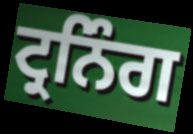
ਟ੍ਰਨਿੰਗ